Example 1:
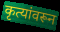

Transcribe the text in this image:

कृत्यांवरून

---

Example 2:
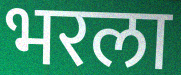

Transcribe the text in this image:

भरला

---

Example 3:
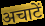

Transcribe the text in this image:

अचाटें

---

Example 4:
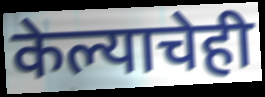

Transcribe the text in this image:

केल्याचेही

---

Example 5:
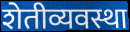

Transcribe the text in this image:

शेतीव्यवस्था